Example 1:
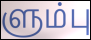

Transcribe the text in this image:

ளும்பு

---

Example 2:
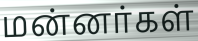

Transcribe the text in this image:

மன்னர்கள்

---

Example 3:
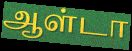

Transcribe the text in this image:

ஆள்டா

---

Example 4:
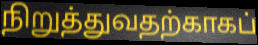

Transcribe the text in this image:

நிறுத்துவதற்காகப்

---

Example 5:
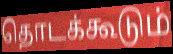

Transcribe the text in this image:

தொடக்கூடும்